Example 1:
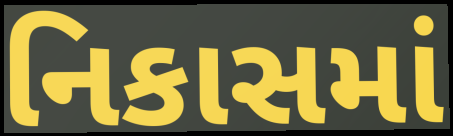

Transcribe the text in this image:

નિકાસમાં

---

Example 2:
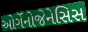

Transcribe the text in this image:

ઓર્ગેનોજેનેસિસ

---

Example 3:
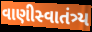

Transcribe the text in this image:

વાણીસ્વાતંત્ર્ય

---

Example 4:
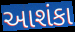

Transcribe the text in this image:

આશંકા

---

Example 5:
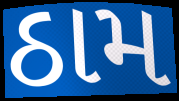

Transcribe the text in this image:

ઠામ